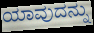
ಯಾವುದನ್ನು